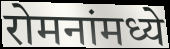
रोमनांमध्ये